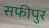
सफीपुर